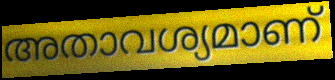
അതാവശ്യമാണ്